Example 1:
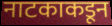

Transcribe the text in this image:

नाटकाकडून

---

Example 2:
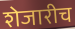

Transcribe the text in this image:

शेजारीच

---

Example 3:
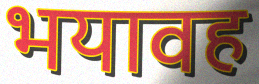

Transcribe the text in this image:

भयावह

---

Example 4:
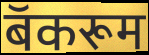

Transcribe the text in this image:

बॅकरूम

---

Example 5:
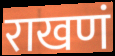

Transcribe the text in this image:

राखणं